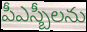
పీఎస్బీలను